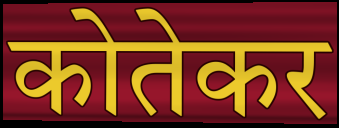
कोतेकर